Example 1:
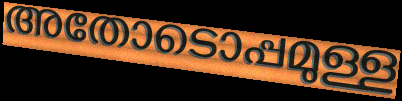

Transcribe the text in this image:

അതോടൊപ്പമുള്ള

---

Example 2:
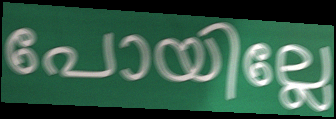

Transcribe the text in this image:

പോയില്ലേ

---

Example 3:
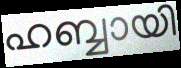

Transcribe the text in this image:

ഹബ്ബായി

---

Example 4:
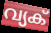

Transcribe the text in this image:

വ്യക്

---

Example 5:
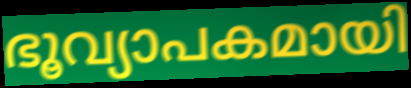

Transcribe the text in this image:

ഭൂവ്യാപകമായി